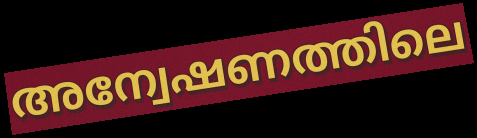
അന്വേഷണത്തിലെ